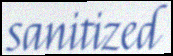
sanitized